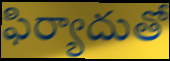
ఫిర్యాదుతో